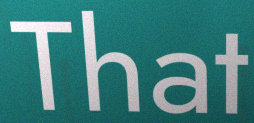
That